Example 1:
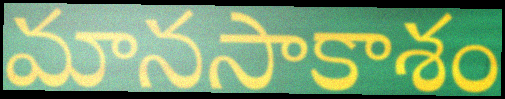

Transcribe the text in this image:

మానసాకాశం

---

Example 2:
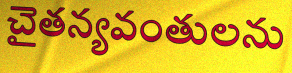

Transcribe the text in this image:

చైతన్యవంతులను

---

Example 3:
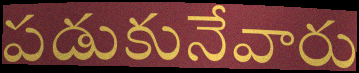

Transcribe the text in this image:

పడుకునేవారు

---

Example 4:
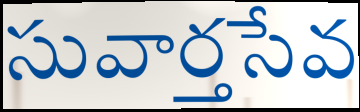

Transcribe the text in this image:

సువార్తసేవ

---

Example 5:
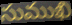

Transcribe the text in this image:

సుముఖి